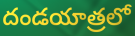
దండయాత్రలో